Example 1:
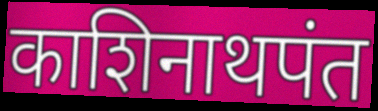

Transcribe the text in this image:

काशिनाथपंत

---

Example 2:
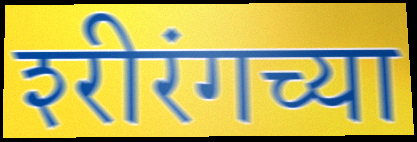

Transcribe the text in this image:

श्रीरंगच्या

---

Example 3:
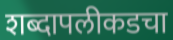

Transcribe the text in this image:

शब्दापलीकडचा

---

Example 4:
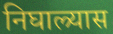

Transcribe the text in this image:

निघाल्यास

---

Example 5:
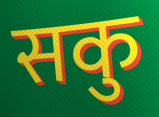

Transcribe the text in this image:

सकु